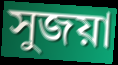
সুজয়া